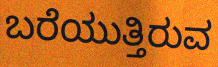
ಬರೆಯುತ್ತಿರುವ